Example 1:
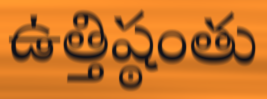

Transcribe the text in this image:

ఉత్తిష్ఠంతు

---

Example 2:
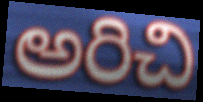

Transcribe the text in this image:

అరిచి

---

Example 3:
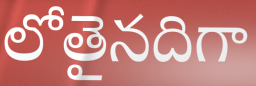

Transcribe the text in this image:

లోతైనదిగా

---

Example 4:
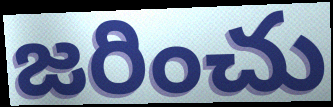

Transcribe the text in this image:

జరించు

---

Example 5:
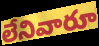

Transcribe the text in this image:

లేనివారూ